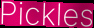
Pickles